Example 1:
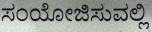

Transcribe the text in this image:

ಸಂಯೋಜಿಸುವಲ್ಲಿ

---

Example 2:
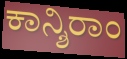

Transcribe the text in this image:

ಕಾನ್ಶಿರಾಂ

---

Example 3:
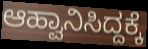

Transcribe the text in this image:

ಆಹ್ವಾನಿಸಿದ್ದಕ್ಕೆ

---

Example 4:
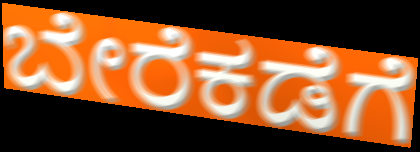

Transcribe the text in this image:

ಬೇರೆಕಡೆಗೆ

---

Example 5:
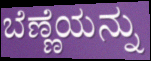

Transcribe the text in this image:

ಬೆಣ್ಣೆಯನ್ನು